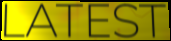
LATEST